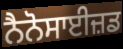
ਨੈਨੋਸਾਈਜ਼ਡ